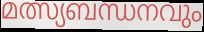
മത്സ്യബന്ധനവും